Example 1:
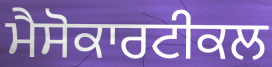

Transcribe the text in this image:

ਮੈਸੋਕਾਰਟੀਕਲ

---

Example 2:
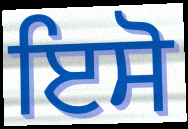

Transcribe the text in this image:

ਇਸੋ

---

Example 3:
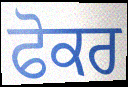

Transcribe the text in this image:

ਫੋਕਰ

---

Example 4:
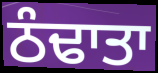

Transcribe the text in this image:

ਠੰਢਾਤਾ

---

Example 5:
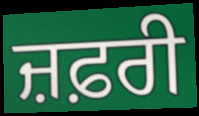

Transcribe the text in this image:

ਜ਼ਫ਼ਰੀ